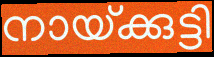
നായ്‌ക്കുട്ടി